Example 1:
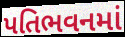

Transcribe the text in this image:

પતિભવનમાં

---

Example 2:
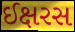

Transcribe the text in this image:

ઈક્ષરસ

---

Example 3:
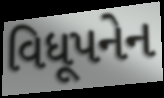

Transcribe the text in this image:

વિધૂપનેન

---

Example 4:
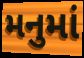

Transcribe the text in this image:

મનુમાં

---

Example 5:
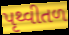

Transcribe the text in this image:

પૃથ્વીતળ